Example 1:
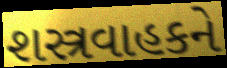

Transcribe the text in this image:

શસ્ત્રવાહકને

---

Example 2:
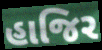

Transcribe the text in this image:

હાજિર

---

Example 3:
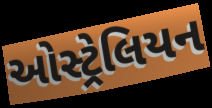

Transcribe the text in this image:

ઓસ્ટ્રેલિયન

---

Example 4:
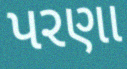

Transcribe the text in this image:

પરણા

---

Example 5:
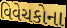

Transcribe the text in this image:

વિવેચકોના